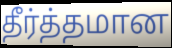
தீர்த்தமான